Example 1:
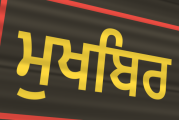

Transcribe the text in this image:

ਮੁਖਬਿਰ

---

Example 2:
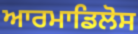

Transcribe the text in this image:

ਆਰਮਾਡਿਲੋਸ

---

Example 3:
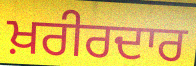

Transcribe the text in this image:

ਖ਼ਰੀਰਦਾਰ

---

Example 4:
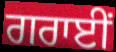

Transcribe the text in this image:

ਗਰਾਈਂ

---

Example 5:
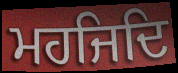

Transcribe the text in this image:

ਮਹਜਿਦਿ